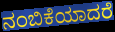
ನಂಬಿಕೆಯಾದರೆ